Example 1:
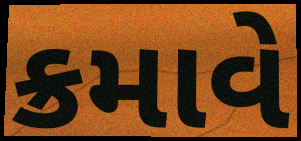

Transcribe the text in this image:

ક્રમાવે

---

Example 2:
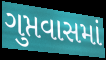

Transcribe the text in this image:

ગુપ્તવાસમાં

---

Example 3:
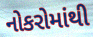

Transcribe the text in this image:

નોકરોમાંથી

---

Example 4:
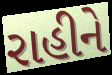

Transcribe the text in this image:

રાહીને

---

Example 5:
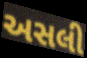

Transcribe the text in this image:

અસલી